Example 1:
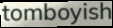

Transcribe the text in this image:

tomboyish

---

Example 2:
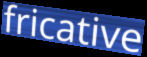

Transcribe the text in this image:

fricative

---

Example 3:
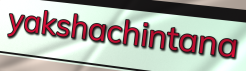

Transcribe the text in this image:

yakshachintana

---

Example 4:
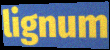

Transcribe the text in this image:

lignum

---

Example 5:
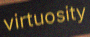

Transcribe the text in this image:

virtuosity